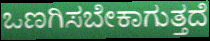
ಒಣಗಿಸಬೇಕಾಗುತ್ತದೆ